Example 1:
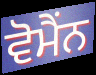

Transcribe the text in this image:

ਵੋਮੈਂਨ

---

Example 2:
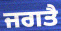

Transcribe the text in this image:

ਜਗਤੈ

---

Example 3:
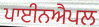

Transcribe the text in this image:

ਪਾਈਨਐਪਲ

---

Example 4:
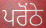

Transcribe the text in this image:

ਪਰੋਂਠੇ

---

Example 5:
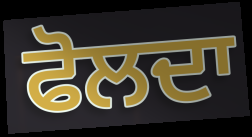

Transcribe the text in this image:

ਫੋਲਦਾ